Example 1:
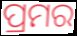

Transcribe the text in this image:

ପ୍ରମର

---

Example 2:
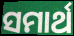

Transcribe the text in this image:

ସମାର୍ଥ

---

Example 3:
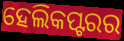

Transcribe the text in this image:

ହେଲିକପ୍ଟରର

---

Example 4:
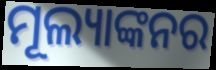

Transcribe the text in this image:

ମୂଲ୍ୟାଙ୍କନର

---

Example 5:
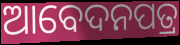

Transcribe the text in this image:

ଆବେଦନପତ୍ର